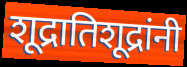
शूद्रातिशूद्रांनी